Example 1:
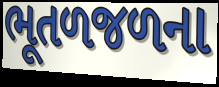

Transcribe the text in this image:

ભૂતળજળના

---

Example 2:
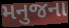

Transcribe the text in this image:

મનુજના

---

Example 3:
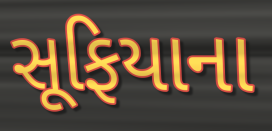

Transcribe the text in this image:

સૂફિયાના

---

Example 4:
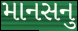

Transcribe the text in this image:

માનસનુ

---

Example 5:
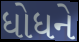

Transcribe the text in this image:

ધોધને